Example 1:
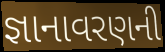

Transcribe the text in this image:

જ્ઞાનાવરણની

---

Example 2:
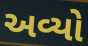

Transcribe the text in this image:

અવ્યો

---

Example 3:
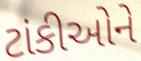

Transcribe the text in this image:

ટાંકીઓને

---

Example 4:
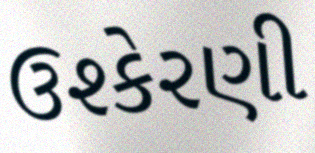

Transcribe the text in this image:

ઉશ્કેરણી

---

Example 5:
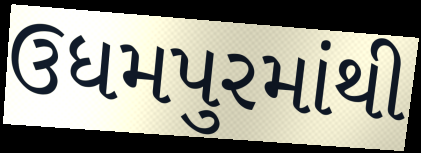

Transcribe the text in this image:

ઉધમપુરમાંથી